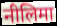
नीलिमा